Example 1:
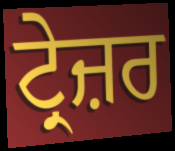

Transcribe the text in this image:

ਟ੍ਰੇਜ਼ਰ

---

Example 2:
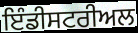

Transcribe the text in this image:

ਇੰਡੀਸਟਰੀਅਲ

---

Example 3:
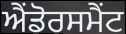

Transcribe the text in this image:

ਐਂਡੋਰਸਮੈਂਟ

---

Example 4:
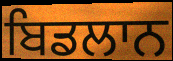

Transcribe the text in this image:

ਬਿਡਲਾਨ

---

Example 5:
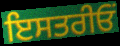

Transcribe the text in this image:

ਇਸਤਰੀਓਂ